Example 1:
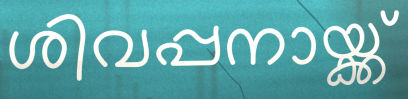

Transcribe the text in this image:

ശിവപ്പനായ്ക്ക്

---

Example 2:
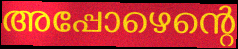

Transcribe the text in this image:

അപ്പോഴെന്റെ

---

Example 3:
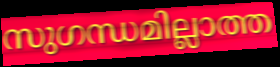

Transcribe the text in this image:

സുഗന്ധമില്ലാത്ത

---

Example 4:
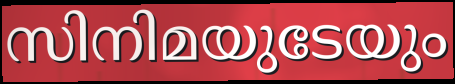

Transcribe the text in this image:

സിനിമയുടേയും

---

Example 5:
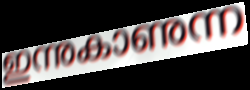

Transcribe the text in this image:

ഇന്നുകാണുന്ന